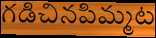
గడిచినపిమ్మట